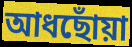
আধছোঁয়া